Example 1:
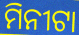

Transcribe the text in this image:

ମିନୀଟା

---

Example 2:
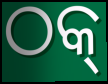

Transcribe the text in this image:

ଠକ୍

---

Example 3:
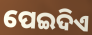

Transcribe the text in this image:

ପେଇଦିଏ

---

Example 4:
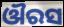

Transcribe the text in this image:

ଔରସ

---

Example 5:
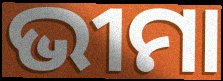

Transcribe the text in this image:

ଭୀମା